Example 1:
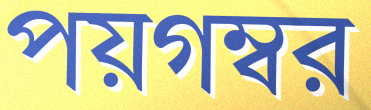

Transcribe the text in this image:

পয়গম্বর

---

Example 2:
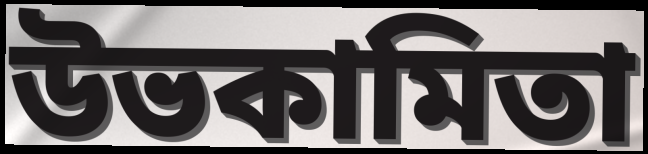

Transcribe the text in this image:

উভকামিতা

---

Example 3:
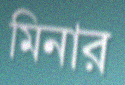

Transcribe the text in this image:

মিনার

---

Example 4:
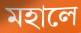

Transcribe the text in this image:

মহালে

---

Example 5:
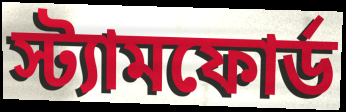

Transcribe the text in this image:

স্ট্যামফোর্ড